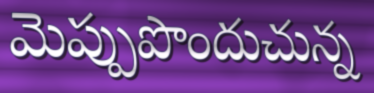
మెప్పుపొందుచున్న